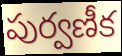
పుర్వణీక